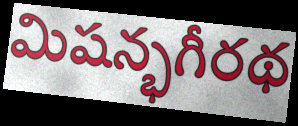
మిషన్భగీరథ